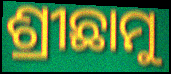
ଶ୍ରୀଛାମୁ